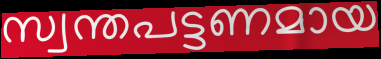
സ്വന്തപട്ടണമായ